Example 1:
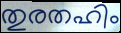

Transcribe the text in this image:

തുരതഹിം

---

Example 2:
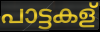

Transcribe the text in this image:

പാട്ടകള്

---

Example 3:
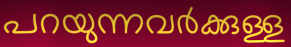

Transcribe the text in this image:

പറയുന്നവർക്കുള്ള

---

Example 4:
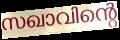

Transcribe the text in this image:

സഖാവിന്റെ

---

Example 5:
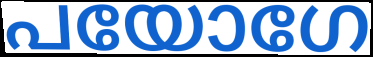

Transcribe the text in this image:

പയോഗേ